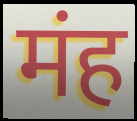
मंह